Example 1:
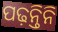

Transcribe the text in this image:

ପଢ଼ନ୍ତିନି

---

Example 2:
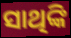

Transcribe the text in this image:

ସାଥିଙ୍କି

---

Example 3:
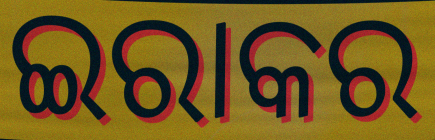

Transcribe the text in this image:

ଇରାକର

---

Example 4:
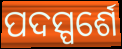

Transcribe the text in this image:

ପଦସ୍ପର୍ଶେ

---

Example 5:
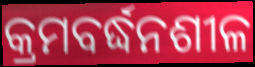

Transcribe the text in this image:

କ୍ରମବର୍ଦ୍ଧନଶୀଳ